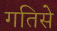
गतिसे